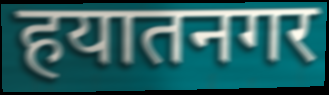
हयातनगर